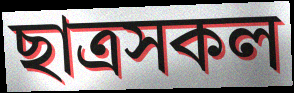
ছাত্ৰসকল